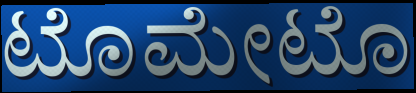
ಟೊಮೇಟೊ